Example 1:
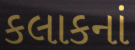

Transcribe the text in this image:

કલાકનાં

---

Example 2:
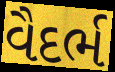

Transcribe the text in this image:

વૈદર્ભ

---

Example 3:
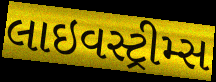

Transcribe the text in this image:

લાઇવસ્ટ્રીમ્સ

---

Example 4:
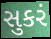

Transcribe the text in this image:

સુકરં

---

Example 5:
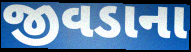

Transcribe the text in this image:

જીવડાના